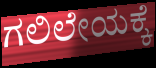
ಗಲಿಲೇಯಕ್ಕೆ